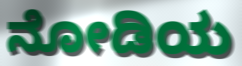
ನೋಡಿಯ